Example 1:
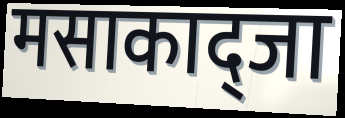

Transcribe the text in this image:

मसाकाद्जा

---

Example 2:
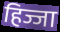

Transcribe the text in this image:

हिज्जा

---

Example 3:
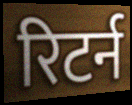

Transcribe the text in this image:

रिटर्न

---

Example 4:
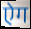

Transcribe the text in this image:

ऐग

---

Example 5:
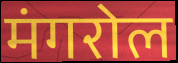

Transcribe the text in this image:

मंगरोल